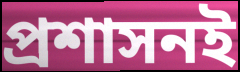
প্রশাসনই